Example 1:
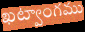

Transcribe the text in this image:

ఖట్వాంగము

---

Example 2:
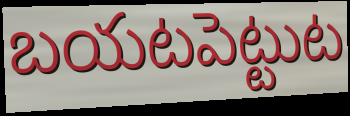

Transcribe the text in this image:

బయటపెట్టుట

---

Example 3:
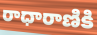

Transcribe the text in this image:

రాధారాణికి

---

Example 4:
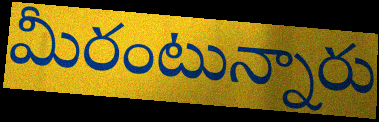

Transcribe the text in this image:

మీరంటున్నారు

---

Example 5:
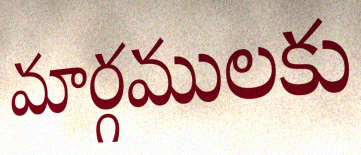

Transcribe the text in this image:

మార్గములకు